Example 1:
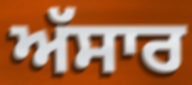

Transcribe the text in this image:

ਅੱਸਾਰ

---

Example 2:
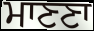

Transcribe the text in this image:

ਮਾਣਣਾ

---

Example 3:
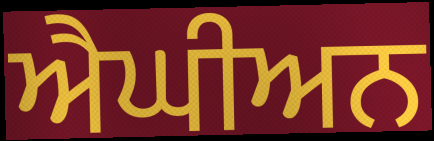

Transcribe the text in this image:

ਐਘੀਅਨ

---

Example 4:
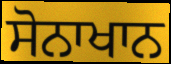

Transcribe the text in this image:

ਸੋਨਾਖਾਨ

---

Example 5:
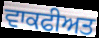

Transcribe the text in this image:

ਵਾਕਫੀਅਤ